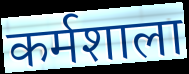
कर्मशाला